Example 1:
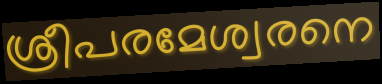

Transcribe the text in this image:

ശ്രീപരമേശ്വരനെ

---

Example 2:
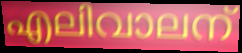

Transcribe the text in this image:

എലിവാലന്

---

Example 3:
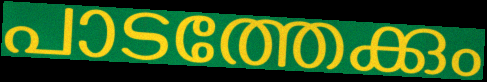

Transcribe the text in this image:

പാടത്തേക്കും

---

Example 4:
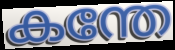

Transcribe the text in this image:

കന്തേ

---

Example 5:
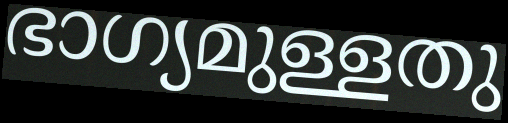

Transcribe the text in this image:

ഭാഗ്യമുള്ളതു